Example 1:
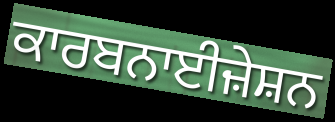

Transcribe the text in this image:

ਕਾਰਬਨਾਈਜ਼ੇਸ਼ਨ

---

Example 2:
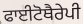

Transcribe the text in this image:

ਫਾਈਟੋਥੈਰੇਪੀ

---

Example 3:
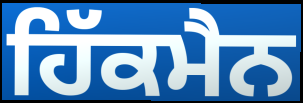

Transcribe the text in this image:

ਹਿੱਕਮੈਨ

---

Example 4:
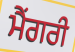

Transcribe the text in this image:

ਮੈਂਗਰੀ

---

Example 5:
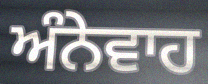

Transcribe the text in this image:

ਅੰਨੇਵਾਹ